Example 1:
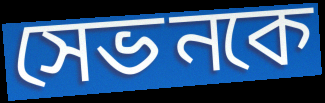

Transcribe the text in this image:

সেভনকে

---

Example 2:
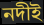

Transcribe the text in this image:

নদীই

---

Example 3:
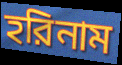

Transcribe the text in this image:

হরিনাম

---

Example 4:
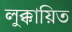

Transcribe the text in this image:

লুক্কায়িত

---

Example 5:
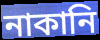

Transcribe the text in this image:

নাকানি